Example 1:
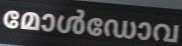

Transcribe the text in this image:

മോൾഡോവ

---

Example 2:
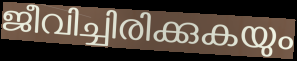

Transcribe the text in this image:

ജീവിച്ചിരിക്കുകയും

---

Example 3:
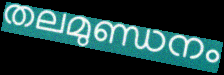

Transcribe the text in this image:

തലമുണ്ഡനം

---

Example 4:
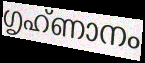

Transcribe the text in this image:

ഗൃഹ്ണാനം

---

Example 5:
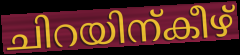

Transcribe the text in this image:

ചിറയിന്കീഴ്